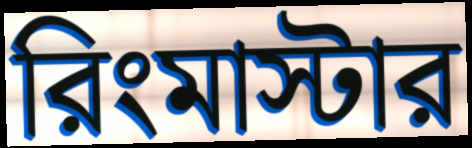
রিংমাস্টার